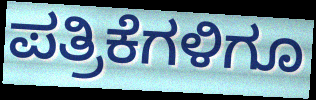
ಪತ್ರಿಕೆಗಳಿಗೂ